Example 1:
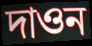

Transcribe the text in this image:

দাওন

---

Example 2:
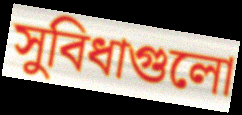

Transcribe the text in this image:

সুবিধাগুলো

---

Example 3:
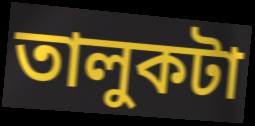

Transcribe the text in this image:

তালুকটা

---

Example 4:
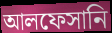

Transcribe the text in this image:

আলফেসানি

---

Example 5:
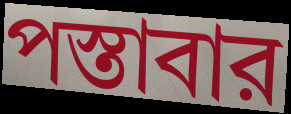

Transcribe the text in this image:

পস্তাবার